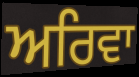
ਅਰਿਵਾ